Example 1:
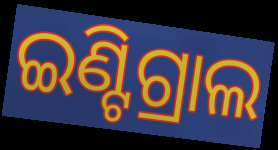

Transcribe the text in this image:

ଇଣ୍ଟିଗ୍ରାଲ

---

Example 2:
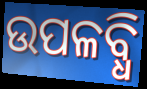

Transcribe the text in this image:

ଉପଳବ୍ଧି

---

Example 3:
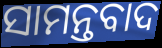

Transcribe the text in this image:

ସାମନ୍ତବାଦ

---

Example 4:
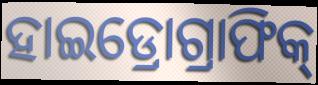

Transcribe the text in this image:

ହାଇଡ୍ରୋଗ୍ରାଫିକ୍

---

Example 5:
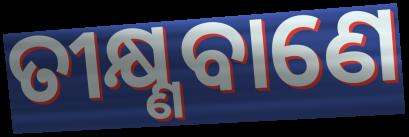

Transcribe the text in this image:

ତୀକ୍ଷ୍ଣବାଣେ